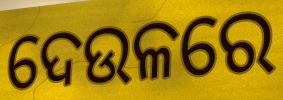
ଦେଉଳରେ